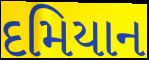
દમિયાન